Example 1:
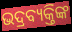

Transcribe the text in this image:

ଭଦ୍ରବ୍ୟକ୍ତିଙ୍କ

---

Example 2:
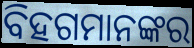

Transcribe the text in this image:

ବିହଗମାନଙ୍କର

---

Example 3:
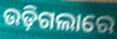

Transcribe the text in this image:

ଉଡ଼ିଗଲାରେ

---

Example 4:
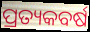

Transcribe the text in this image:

ପ୍ରତ୍ୟକବର୍ଷ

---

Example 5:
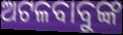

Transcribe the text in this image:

ଅଟଳବାବୁଙ୍କ